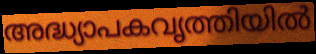
അദ്ധ്യാപകവൃത്തിയിൽ